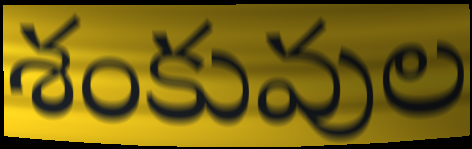
శంకువుల